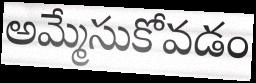
అమ్మేసుకోవడం